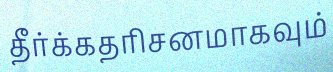
தீர்க்கதரிசனமாகவும்